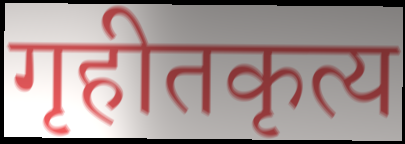
गृहीतकृत्य